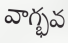
వాగ్భవ